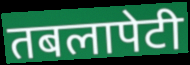
तबलापेटी